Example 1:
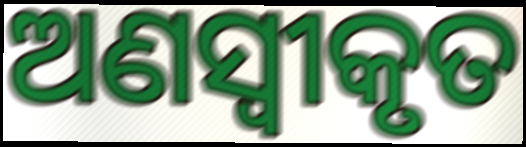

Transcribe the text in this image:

ଅଣସ୍ୱୀକୃତ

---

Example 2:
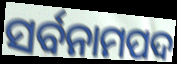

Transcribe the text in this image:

ସର୍ବନାମପଦ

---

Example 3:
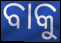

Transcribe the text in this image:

ବାକୁ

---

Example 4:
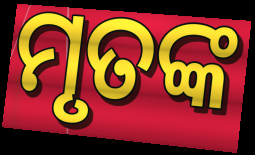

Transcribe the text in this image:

ମୃତଙ୍କ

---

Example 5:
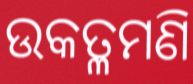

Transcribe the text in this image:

ଉକତ୍ଳମଣି